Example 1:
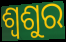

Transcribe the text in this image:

ଶ୍ଵଶୁର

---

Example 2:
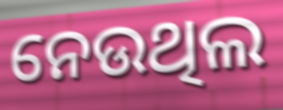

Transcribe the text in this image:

ନେଉଥିଲ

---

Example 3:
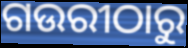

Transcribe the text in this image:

ଗଉରୀଠାରୁ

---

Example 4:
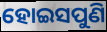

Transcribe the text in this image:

ହୋଇସପୁଣି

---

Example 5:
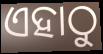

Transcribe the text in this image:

ଏହାଠୁ